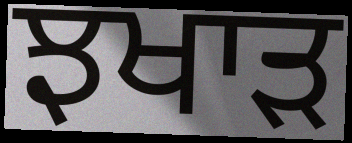
ਝਖਾੜ